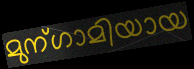
മുന്ഗാമിയായ